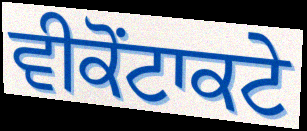
ਵੀਕੋਂਟਾਕਟੇ